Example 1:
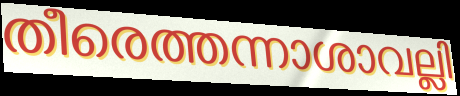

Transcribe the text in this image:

തീരെത്തന്നാശാവല്ലി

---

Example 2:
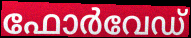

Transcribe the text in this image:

ഫോർവേഡ്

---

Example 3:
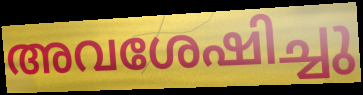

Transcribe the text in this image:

അവശേഷിച്ചു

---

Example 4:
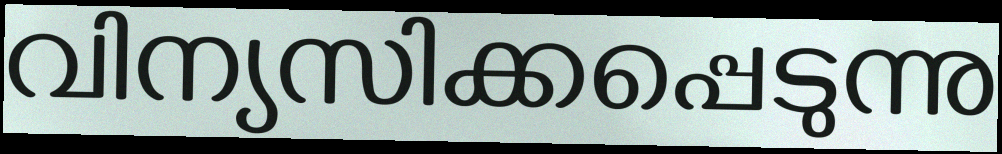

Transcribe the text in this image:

വിന്യസിക്കപ്പെടുന്നു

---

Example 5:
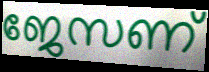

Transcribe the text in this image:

ജേസണ്